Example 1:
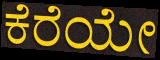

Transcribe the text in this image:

ಕೆರೆಯೇ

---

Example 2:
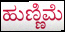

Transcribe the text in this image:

ಹುಣ್ಣಿಮೆ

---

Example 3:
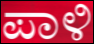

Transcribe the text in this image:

ಪಾಳಿ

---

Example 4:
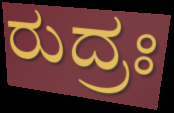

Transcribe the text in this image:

ರುದ್ರಃ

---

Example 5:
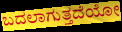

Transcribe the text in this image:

ಬದಲಾಗುತ್ತದೆಯೋ